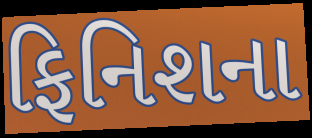
ફિનિશના